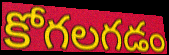
కోగలగడం